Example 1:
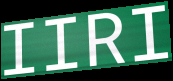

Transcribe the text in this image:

IIRI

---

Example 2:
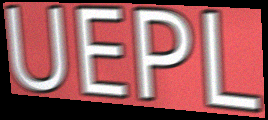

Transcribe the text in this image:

UEPL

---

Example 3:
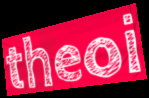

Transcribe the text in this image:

theoi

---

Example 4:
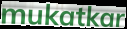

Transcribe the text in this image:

mukatkar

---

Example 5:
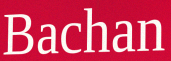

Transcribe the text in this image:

Bachan